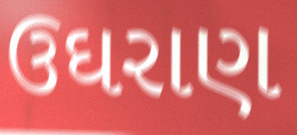
ઉઘરાણ